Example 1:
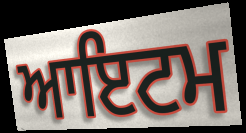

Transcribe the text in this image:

ਆਇਟਮ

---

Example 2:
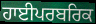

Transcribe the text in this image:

ਹਾਈਪਰਬਰਿਕ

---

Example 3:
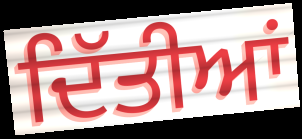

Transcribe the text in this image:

ਦਿੱਤੀਆਂ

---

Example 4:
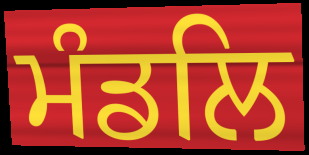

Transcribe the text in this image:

ਮੰਡਲਿ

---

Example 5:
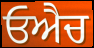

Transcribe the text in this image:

ਓਐਚ